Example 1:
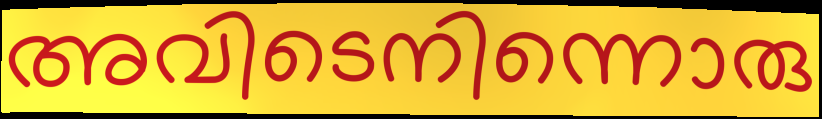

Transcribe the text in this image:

അവിടെനിന്നൊരു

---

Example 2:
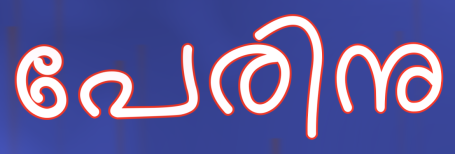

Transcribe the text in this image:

പേരിനു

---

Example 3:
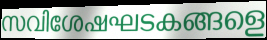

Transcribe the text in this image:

സവിശേഷഘടകങ്ങളെ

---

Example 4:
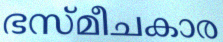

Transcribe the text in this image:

ഭസ്മീചകാര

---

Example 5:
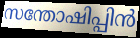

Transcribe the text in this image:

സന്തോഷിപ്പിൻ